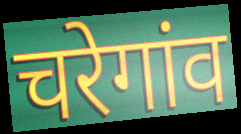
चरेगांव